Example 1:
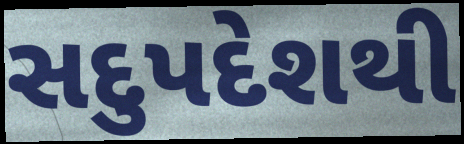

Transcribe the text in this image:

સદુપદેશથી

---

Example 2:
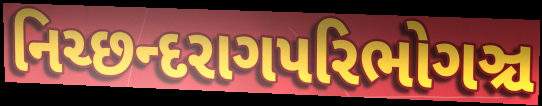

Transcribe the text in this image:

નિચ્છન્દરાગપરિભોગઞ્ચ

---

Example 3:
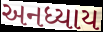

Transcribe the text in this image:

અનધ્યાય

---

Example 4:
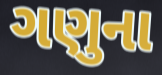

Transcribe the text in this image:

ગણુના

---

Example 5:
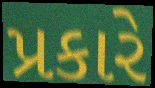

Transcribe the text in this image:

પ્રકારે